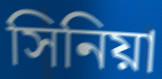
সিনিয়া